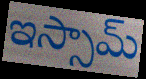
ఇస్సామ్